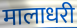
मालाधरी